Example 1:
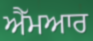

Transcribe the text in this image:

ਐੱਮਆਰ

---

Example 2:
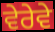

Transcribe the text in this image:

ਵੇਰੇਵੇ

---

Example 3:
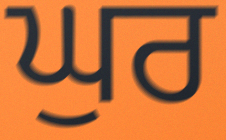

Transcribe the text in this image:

ਘੁਰ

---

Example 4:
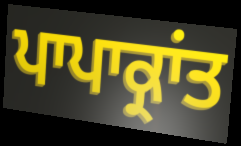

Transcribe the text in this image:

ਪਾਪਾਕ੍ਰਾਂਤ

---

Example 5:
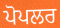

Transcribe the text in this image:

ਪੋਪਲਰ